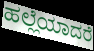
ಹಲ್ಲೆಯಾದರೆ